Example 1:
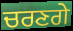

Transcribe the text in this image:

ਚਰਣਗੇ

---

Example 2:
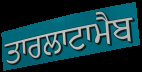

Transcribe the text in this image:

ਤਾਰਲਾਟਾਮੈਬ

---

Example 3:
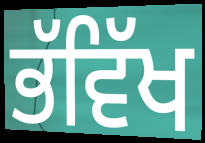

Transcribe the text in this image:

ਭੱਵਿੱਖ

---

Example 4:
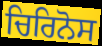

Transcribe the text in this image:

ਚਿਰਿਨੋਸ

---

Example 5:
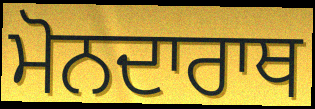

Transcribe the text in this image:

ਮੋਨਦਾਰਾਥ